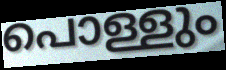
പൊള്ളും